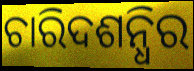
ଚାରିଦଶନ୍ଧିର